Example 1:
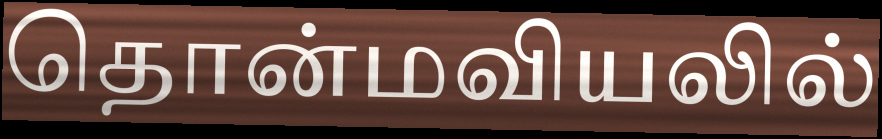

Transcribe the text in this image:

தொன்மவியலில்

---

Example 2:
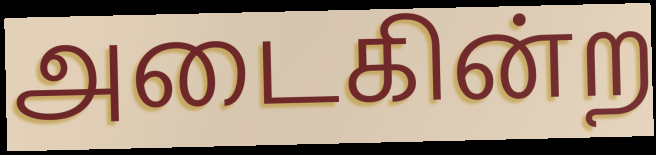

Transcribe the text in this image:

அடைகின்ற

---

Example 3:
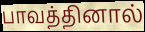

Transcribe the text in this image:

பாவத்தினால்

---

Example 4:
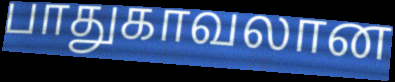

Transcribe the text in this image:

பாதுகாவலான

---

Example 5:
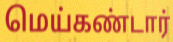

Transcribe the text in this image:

மெய்கண்டார்